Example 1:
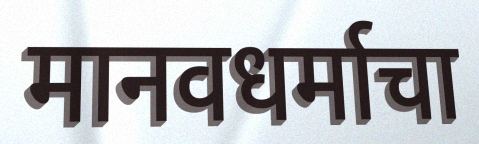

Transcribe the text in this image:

मानवधर्माचा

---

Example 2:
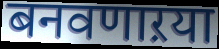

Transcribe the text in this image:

बनवणाऱया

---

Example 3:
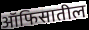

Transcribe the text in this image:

ऑफिसातील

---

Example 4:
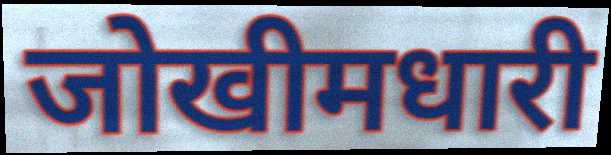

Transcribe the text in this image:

जोखीमधारी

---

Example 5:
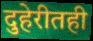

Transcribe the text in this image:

दुहेरीतही